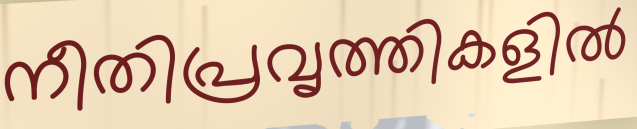
നീതിപ്രവൃത്തികളിൽ